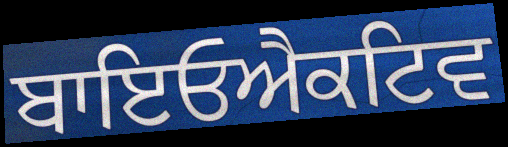
ਬਾਇਓਐਕਟਿਵ